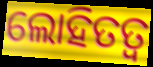
ଲୋହିତତ୍ଵ